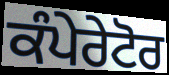
ਕੰਪੇਰੇਟੋਰ